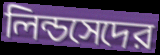
লিন্ডসেদের